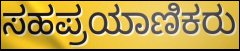
ಸಹಪ್ರಯಾಣಿಕರು